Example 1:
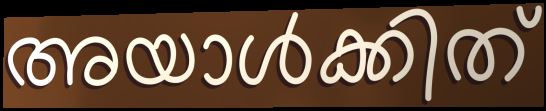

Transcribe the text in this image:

അയാൾക്കിത്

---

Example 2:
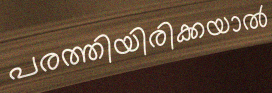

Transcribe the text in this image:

പരത്തിയിരിക്കയാൽ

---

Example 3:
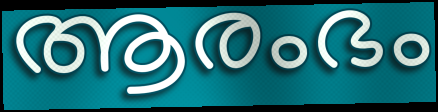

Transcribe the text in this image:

ആരംഭം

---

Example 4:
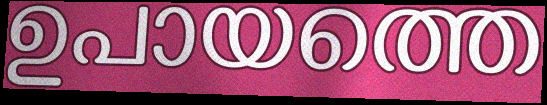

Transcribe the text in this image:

ഉപായത്തെ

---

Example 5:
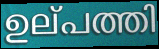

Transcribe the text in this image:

ഉല്‌പത്തി